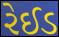
રેઈડ